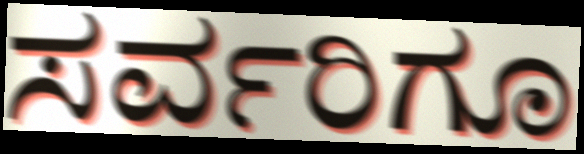
ಸರ್ವರಿಗೂ